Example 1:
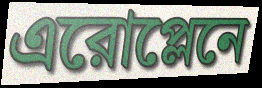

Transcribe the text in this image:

এরোপ্লেনে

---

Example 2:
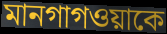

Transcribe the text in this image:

মানগাগওয়াকে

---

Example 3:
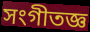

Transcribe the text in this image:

সংগীতজ্ঞ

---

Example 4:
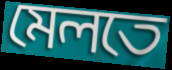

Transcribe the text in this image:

মেলতে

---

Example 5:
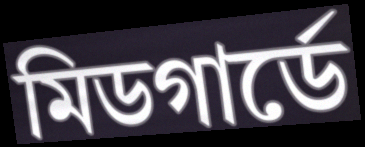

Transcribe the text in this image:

মিডগার্ডে